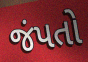
જંપતો